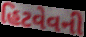
હિટવેવની